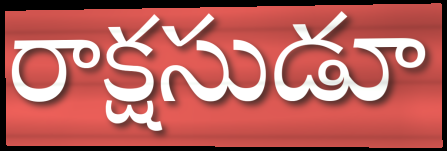
రాక్షసుడూ